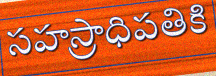
సహస్రాధిపతికి